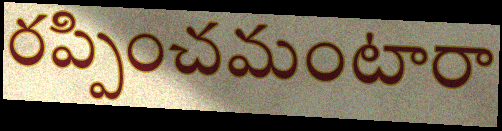
రప్పించమంటారా